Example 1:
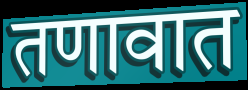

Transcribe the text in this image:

तणावात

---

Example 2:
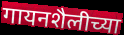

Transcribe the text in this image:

गायनशैलीच्या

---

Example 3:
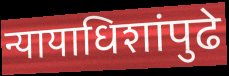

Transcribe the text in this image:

न्यायाधिशांपुढे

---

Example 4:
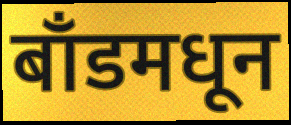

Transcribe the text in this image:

बाँडमधून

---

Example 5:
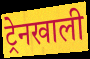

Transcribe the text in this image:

ट्रेनखाली